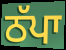
ਠੱਪਾ